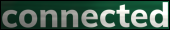
connected